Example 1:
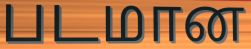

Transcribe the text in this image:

படமான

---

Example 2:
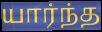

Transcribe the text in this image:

யார்ந்த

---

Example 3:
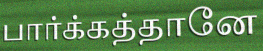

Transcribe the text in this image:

பார்க்கத்தானே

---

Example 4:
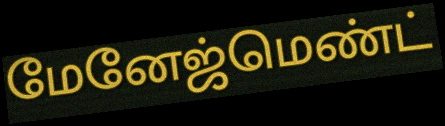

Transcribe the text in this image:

மேனேஜ்மெண்ட்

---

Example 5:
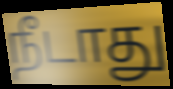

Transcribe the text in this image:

நீடாது